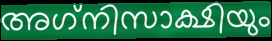
അഗ്‌നിസാക്ഷിയും